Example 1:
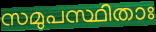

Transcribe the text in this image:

സമുപസ്ഥിതാഃ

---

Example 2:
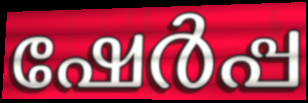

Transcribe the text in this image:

ഷേർപ്പ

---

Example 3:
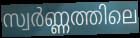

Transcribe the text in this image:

സ്വർണ്ണത്തിലെ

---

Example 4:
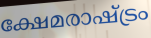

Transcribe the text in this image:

ക്ഷേമരാഷ്ട്രം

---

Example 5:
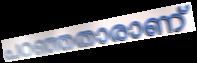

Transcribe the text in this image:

പറഞ്ഞതാരാണ്